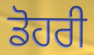
ਡੋਹਰੀ